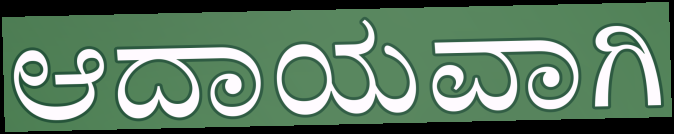
ಆದಾಯವಾಗಿ